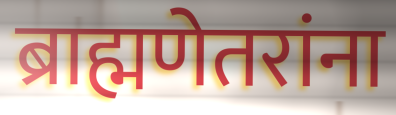
ब्राह्मणेतरांना